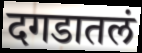
दगडातलं